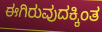
ಈಗಿರುವುದಕ್ಕಿಂತ